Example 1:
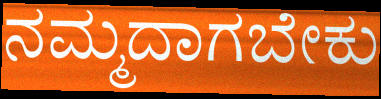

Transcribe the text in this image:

ನಮ್ಮದಾಗಬೇಕು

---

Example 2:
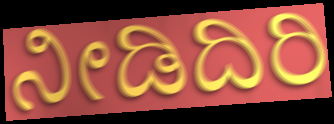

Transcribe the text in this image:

ನೀಡಿದಿರಿ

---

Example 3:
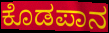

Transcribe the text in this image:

ಕೊಡಪಾನ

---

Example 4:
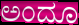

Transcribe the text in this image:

ಅಂದೂ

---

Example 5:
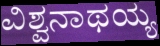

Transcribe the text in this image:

ವಿಶ್ವನಾಥಯ್ಯ